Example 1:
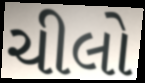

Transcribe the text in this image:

ચીલો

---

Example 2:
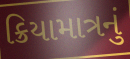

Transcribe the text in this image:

ક્રિયામાત્રનું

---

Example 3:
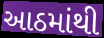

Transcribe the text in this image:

આઠમાંથી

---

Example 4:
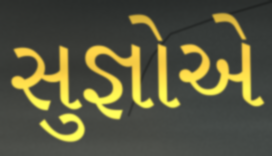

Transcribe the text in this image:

સુજ્ઞોએ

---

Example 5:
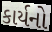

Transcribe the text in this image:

કાર્યનો